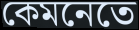
কেমনেতে